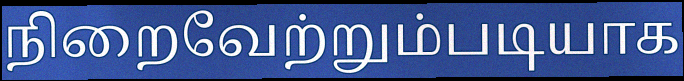
நிறைவேற்றும்படியாக